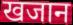
खजान